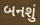
બનશું